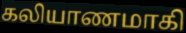
கலியாணமாகி